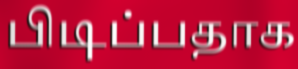
பிடிப்பதாக